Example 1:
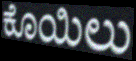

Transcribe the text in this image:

ಕೊಯಿಲು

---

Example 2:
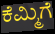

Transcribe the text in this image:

ಕೆಮ್ಮಿಗೆ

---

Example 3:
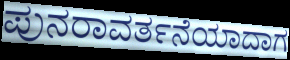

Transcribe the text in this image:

ಪುನರಾವರ್ತನೆಯಾದಾಗ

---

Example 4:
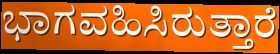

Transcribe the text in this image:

ಭಾಗವಹಿಸಿರುತ್ತಾರೆ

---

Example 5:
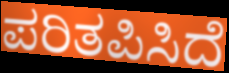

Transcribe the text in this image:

ಪರಿತಪಿಸಿದೆ